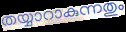
തയ്യാറാകുന്നതും